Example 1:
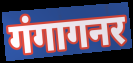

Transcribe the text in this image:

गंगागनर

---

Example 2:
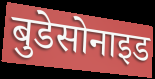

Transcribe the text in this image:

बुडेसोनाइड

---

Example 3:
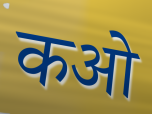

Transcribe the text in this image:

कओ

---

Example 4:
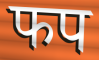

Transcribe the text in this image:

फप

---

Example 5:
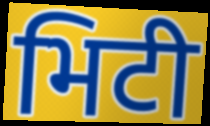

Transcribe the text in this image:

भिटी